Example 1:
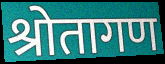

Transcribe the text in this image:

श्रोतागण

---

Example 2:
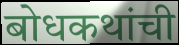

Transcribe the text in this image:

बोधकथांची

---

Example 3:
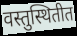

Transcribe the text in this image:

वस्तुस्थितीत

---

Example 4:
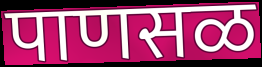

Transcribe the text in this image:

पाणसळ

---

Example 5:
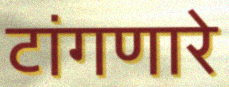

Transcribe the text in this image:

टांगणारे